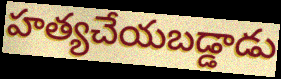
హత్యచేయబడ్డాడు